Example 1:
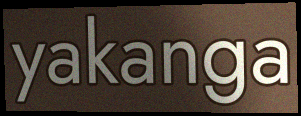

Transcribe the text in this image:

yakanga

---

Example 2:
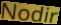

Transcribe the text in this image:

Nodir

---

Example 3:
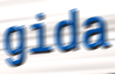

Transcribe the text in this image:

gida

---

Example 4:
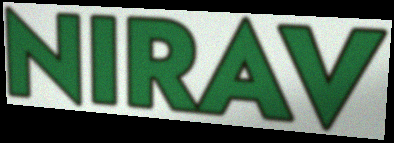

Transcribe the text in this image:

NIRAV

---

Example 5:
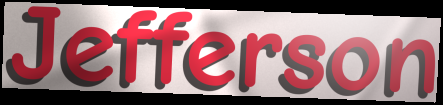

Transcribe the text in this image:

Jefferson